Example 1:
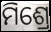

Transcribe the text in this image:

ମିଶ୍ରେ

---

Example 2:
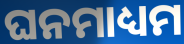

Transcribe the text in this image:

ଘନମାଧ୍ୟମ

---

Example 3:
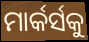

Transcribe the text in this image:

ମାର୍କର୍ସକୁ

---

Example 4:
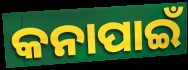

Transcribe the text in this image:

କନାପାଇଁ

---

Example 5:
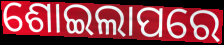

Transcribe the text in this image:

ଶୋଇଲାପରେ